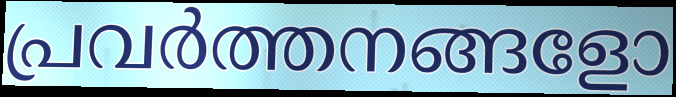
പ്രവർത്തനങ്ങളോ